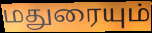
மதுரையும்